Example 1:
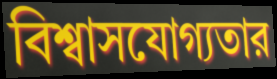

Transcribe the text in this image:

বিশ্বাসযোগ্যতার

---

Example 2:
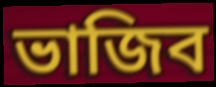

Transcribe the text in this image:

ভাজিব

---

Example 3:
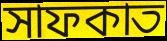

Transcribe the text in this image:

সাফকাত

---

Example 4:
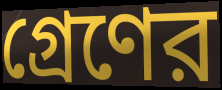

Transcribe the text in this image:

গ্রেণের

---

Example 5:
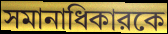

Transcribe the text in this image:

সমানাধিকারকে